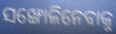
ସଙ୍ଖୋଳିନେବାକୁ